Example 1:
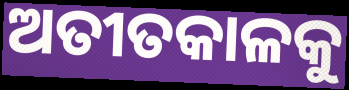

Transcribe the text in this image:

ଅତୀତକାଳକୁ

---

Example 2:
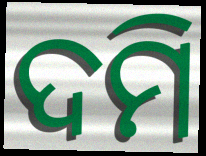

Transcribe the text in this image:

ଦମି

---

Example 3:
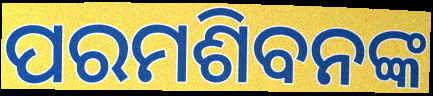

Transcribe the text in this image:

ପରମଶିବନଙ୍କ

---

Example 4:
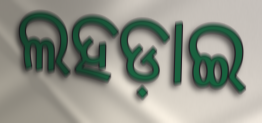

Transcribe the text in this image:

ଲହଡ଼ାଇ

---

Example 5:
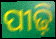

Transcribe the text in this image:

ପୀଢ଼ି